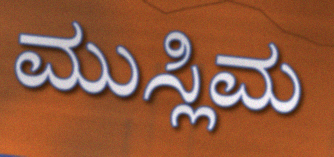
ಮುಸ್ಲಿಮ